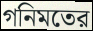
গনিমতের